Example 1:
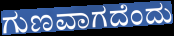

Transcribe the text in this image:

ಗುಣವಾಗದೆಂದು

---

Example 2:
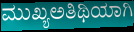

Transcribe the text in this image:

ಮುಖ್ಯಅತಿಥಿಯಾಗಿ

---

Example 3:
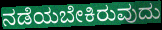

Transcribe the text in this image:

ನಡೆಯಬೇಕಿರುವುದು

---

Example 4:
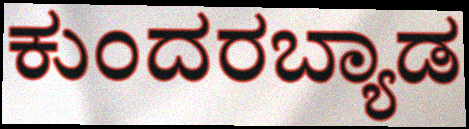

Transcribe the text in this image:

ಕುಂದರಬ್ಯಾಡ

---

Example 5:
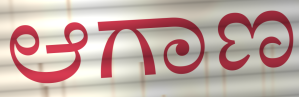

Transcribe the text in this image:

ಆಗಾಣ